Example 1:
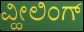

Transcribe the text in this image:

ವ್ಹೀಲಿಂಗ್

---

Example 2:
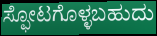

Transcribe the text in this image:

ಸ್ಫೋಟಗೊಳ್ಳಬಹುದು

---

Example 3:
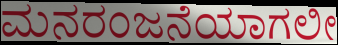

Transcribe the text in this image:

ಮನರಂಜನೆಯಾಗಲೀ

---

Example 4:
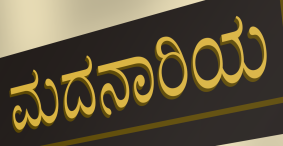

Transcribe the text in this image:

ಮದನಾರಿಯ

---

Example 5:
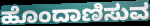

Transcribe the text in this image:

ಹೊಂದಾಣಿಸುವ